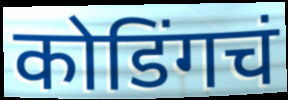
कोडिंगचं